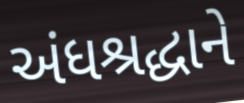
અંધશ્રદ્ધાને